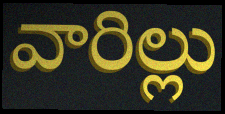
వారిల్లు